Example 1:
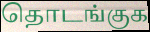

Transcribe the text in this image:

தொடங்குக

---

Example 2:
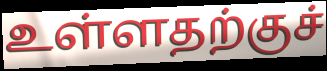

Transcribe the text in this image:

உள்ளதற்குச்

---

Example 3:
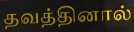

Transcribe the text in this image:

தவத்தினால்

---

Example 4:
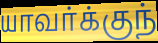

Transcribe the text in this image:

யாவர்க்குந்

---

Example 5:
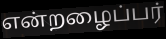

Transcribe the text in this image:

என்றழைப்பர்